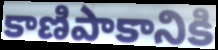
కాణిపాకానికి